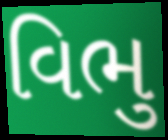
વિભુ